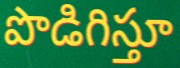
పొడిగిస్తూ